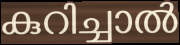
കുറിച്ചാൽ